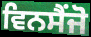
ਵਿਨਸੈਂਜੋ